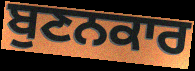
ਬੁਣਨਕਾਰ